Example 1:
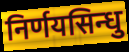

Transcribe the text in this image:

निर्णयसिन्धु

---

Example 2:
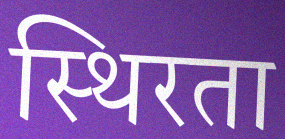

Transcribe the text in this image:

स्थिरता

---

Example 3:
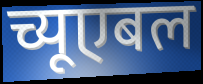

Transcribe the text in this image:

च्यूएबल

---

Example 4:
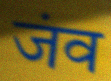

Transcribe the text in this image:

जंव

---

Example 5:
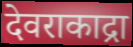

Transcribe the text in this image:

देवराकाद्रा